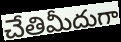
చేతిమీదుగా